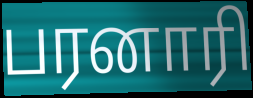
பரனாரி